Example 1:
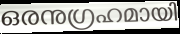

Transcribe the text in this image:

ഒരനുഗ്രഹമായി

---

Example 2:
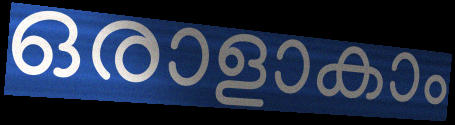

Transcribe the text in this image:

ഒരാളാകാം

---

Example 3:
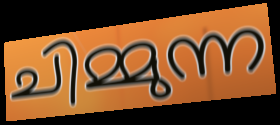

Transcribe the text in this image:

ചിമ്മുന്ന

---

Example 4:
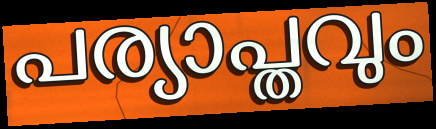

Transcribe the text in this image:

പര്യാപ്തവും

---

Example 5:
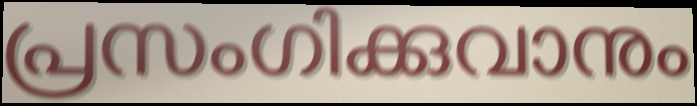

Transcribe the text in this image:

പ്രസംഗിക്കുവാനും